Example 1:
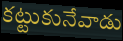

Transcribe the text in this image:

కట్టుకునేవాడు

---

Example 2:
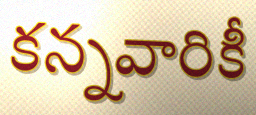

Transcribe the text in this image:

కన్నవారికీ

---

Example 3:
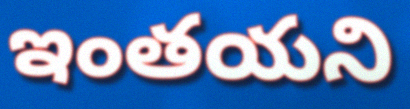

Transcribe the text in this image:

ఇంతయని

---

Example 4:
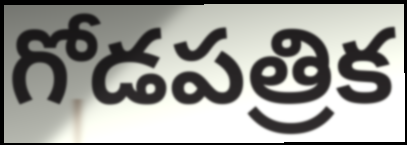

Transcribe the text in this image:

గోడపత్రిక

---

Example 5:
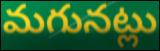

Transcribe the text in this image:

మగునట్లు